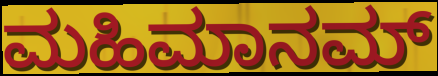
ಮಹಿಮಾನಮ್